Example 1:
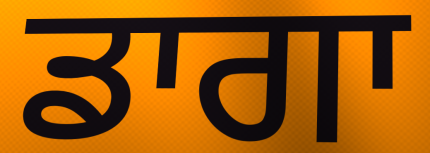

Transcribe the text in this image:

ਡਾਗਾ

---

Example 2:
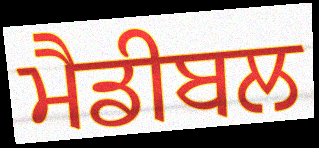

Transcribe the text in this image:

ਮੈਡੀਬਲ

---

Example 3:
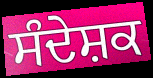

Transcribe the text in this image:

ਸੰਦੇਸ਼ਕ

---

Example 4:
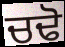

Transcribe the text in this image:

ਚਢੋ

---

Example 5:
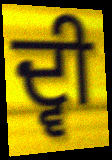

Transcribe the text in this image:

ਦ੍ਵੀ